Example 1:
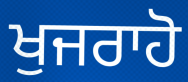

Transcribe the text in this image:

ਖੁਜਰਾਹੋ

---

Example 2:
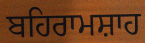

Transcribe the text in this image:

ਬਹਿਰਾਮਸ਼ਾਹ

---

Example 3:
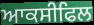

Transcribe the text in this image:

ਆਕਸੀਫਿਲ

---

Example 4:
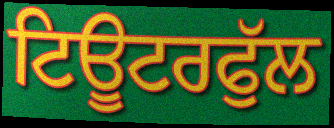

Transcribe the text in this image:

ਟਿਊਟਰਫੁੱਲ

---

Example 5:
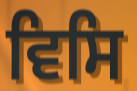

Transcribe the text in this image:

ਵਿਸਿ